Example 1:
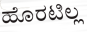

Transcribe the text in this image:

ಹೊರಟಿಲ್ಲ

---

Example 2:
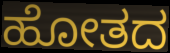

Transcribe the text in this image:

ಹೋತದ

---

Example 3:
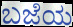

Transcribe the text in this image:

ಬಜೆಯ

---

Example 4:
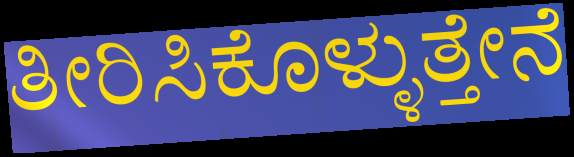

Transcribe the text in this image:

ತೀರಿಸಿಕೊಳ್ಳುತ್ತೇನೆ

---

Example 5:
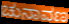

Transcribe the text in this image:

ಚುನಾವಣ